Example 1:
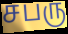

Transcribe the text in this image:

சபரு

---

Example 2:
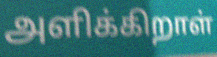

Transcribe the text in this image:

அளிக்கிறாள்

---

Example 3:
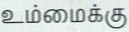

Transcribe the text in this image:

உம்மைக்கு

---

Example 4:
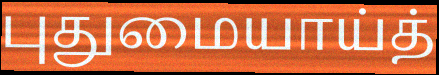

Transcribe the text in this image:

புதுமையாய்த்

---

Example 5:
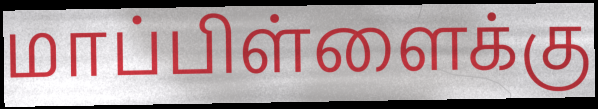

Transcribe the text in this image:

மாப்பிள்ளைக்கு